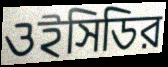
ওইসিডির